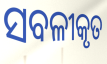
ସବଳୀକୃତ